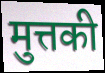
मुत्तकी